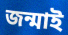
জন্মাই